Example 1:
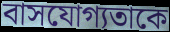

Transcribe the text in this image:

বাসযোগ্যতাকে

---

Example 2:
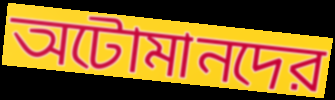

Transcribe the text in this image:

অটোমানদের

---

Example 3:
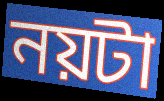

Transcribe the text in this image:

নয়টা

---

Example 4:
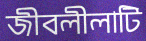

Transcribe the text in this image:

জীবলীলাটি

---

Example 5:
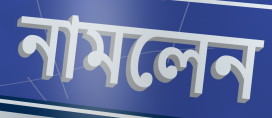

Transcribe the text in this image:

নামলেন